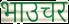
भाउचर